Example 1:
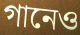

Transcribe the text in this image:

গানেও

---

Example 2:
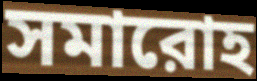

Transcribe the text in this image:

সমারোহ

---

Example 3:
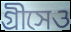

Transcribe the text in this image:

গ্রীসেও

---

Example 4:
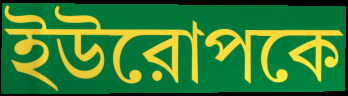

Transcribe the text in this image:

ইউরোপকে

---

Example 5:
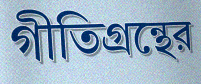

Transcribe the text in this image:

গীতিগ্রন্থের